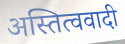
अस्तित्ववादी